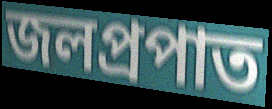
জলপ্রপাত